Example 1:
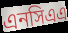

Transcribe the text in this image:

এনসিএএ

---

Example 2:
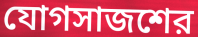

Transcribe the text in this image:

যোগসাজশের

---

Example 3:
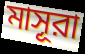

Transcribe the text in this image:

মাসূরা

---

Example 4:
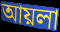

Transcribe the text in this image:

আয়লা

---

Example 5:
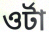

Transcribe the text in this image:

ওর্টা